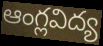
ఆంగ్లవిద్య